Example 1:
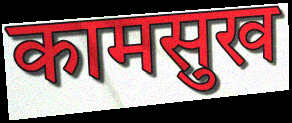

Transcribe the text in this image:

कामसुख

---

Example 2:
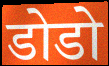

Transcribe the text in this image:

डोडो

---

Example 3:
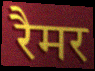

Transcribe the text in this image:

रैमर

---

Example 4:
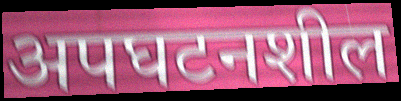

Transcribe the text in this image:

अपघटनशील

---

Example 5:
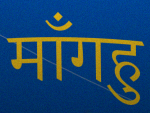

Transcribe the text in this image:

माँगहु